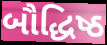
બૌદ્ધિષ્ઠ